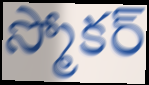
స్మోకర్